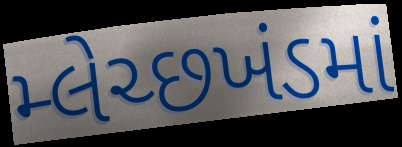
મ્લેચ્છખંડમાં